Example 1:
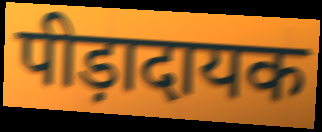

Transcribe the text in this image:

पीड़ादायक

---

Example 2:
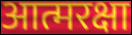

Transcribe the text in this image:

आत्मरक्षा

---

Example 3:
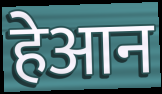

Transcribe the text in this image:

हेआन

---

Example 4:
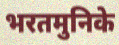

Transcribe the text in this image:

भरतमुनिके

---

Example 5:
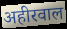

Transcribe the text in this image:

अहीरवाल